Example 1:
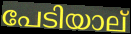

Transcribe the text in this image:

പേടിയാല്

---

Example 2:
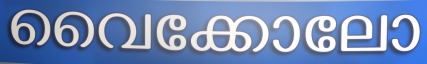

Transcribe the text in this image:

വൈക്കോലോ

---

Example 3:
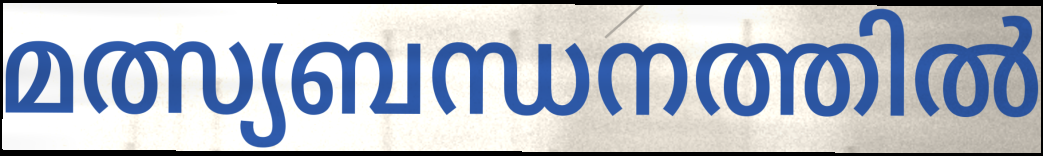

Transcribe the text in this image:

മത്സ്യബന്ധനത്തിൽ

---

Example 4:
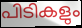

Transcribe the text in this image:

പിടികളും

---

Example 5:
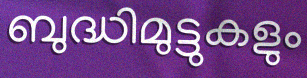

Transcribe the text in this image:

ബുദ്ധിമുട്ടുകളും